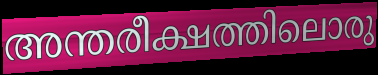
അന്തരീക്ഷത്തിലൊരു